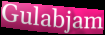
Gulabjam